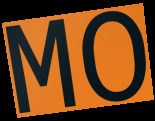
MO